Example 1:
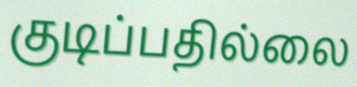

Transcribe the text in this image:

குடிப்பதில்லை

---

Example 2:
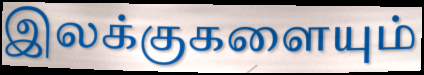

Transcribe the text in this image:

இலக்குகளையும்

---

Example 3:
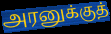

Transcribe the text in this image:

அரனுக்குத்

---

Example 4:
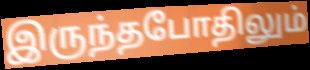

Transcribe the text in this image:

இருந்தபோதிலும்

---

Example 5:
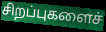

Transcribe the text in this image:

சிறப்புகளைச்